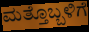
ಮತ್ತೊಬ್ಬಳಿಗೆ